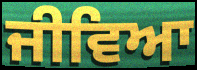
ਜੀਵਿਆ